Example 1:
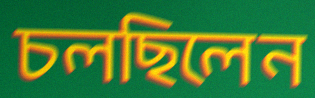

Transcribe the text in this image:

চলছিলেন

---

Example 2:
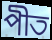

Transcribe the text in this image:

পীত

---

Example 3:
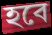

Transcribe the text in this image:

হবে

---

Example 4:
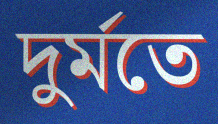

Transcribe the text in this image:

দুর্মতে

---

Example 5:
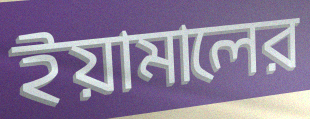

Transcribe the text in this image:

ইয়ামালের